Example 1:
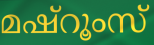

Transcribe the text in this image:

മഷ്റൂംസ്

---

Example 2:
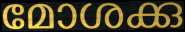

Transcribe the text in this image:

മോശക്കു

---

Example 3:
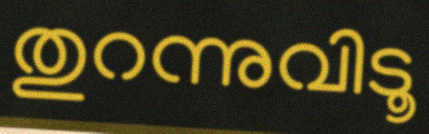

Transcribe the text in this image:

തുറന്നുവിടൂ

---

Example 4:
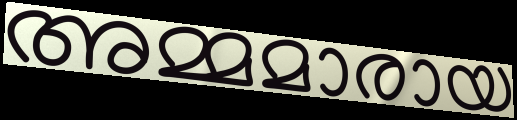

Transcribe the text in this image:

അമ്മമാരായ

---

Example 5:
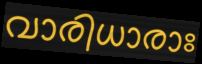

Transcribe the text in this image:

വാരിധാരാഃ